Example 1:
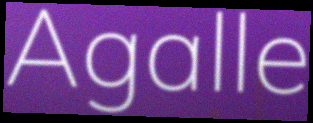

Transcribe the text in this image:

Agalle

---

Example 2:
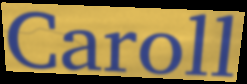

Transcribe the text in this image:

Caroll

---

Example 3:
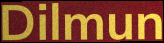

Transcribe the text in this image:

Dilmun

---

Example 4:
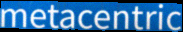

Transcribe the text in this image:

metacentric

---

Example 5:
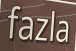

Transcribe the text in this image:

fazla